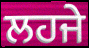
ਲਹਜੇ